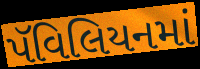
પૅવિલિયનમાં